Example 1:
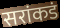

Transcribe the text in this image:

सरांकडं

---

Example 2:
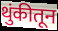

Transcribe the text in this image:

थुंकीतून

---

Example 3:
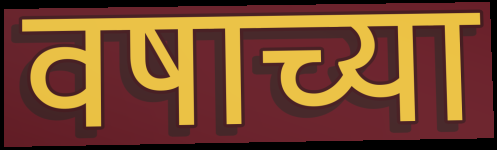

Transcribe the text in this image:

वषाच्या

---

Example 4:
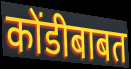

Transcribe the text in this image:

कोंडीबाबत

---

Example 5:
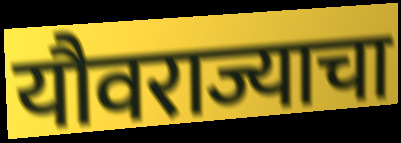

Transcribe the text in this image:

यौवराज्याचा